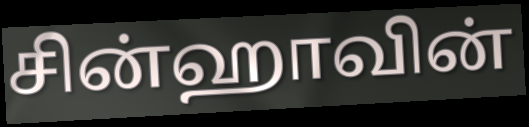
சின்ஹாவின்